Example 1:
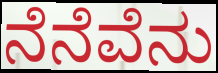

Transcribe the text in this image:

ನೆನೆವೆನು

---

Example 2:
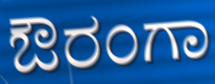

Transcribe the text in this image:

ಔರಂಗಾ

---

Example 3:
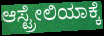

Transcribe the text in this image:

ಆಸ್ಟ್ರೇಲಿಯಾಕ್ಕೆ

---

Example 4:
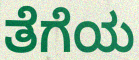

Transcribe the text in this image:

ತೆಗೆಯ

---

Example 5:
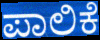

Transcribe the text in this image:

ಪಾಲಿಕೆ